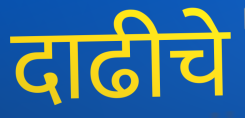
दाढीचे